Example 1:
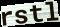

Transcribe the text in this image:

rstl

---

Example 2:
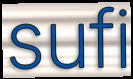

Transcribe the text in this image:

sufi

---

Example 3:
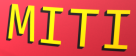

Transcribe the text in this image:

MITI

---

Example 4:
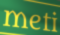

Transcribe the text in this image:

meti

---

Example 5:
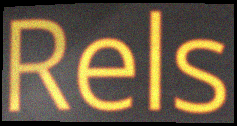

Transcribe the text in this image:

Rels